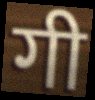
गी